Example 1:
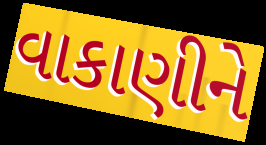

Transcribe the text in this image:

વાકાણીને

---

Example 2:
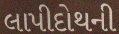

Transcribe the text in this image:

લાપીદોથની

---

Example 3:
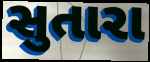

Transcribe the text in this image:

સુતારા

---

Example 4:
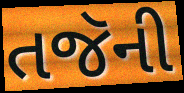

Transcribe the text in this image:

તજૅની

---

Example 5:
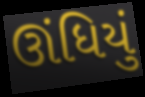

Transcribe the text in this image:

ઊંધિયું